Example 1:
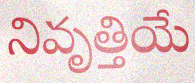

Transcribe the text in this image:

నివృత్తియే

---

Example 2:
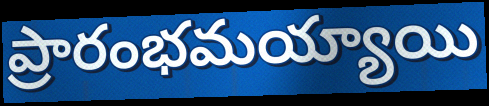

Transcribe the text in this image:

ప్రారంభమయ్యాయి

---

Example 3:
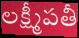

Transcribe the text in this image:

లక్ష్మీపతీ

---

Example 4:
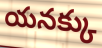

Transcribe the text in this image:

యనక్కు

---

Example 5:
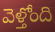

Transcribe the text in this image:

వెళ్తోంది